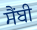
ਸੈਂਬੀ